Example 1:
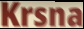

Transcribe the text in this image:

Krsna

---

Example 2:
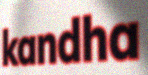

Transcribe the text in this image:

kandha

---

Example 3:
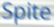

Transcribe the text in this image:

Spite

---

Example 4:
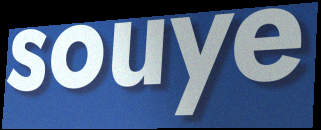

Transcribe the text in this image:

souye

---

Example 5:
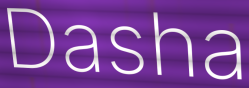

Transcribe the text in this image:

Dasha